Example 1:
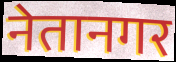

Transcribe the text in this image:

नेतानगर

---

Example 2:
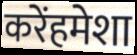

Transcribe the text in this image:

करेंहमेशा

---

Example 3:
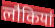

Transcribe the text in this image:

लौकियां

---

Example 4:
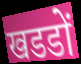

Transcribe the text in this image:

खडडों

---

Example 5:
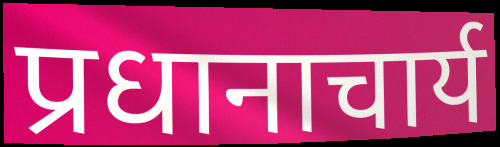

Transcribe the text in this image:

प्रधानाचार्य